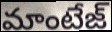
మాంటేజ్